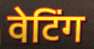
वेटिंग